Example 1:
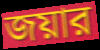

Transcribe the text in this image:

জয়ার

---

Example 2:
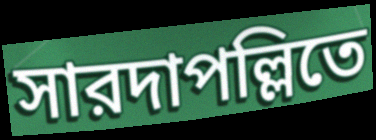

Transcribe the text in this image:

সারদাপল্লিতে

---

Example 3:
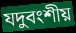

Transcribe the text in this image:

যদুবংশীয়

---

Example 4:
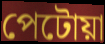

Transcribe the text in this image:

পেটোয়া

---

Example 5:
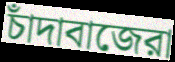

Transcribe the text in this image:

চাঁদাবাজেরা